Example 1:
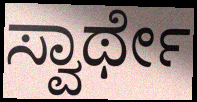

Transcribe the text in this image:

ಸ್ವಾರ್ಥೇ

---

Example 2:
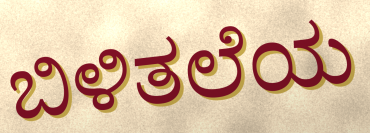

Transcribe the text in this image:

ಬಿಳಿತಲೆಯ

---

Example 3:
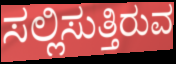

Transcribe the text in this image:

ಸಲ್ಲಿಸುತ್ತಿರುವ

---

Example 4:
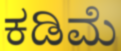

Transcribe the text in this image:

ಕಡಿಮೆ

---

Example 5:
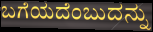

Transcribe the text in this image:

ಬಗೆಯದೆಂಬುದನ್ನು